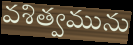
వశిత్వమును